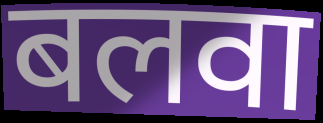
बलवा